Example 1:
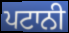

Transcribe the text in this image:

ਪਟਾਨੀ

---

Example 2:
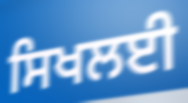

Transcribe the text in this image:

ਸਿਖਲਈ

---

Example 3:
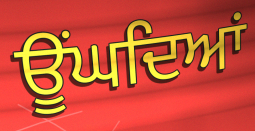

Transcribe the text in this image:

ਊਂਘਦਿਆਂ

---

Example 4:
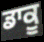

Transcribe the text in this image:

ਡਾਕੂ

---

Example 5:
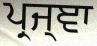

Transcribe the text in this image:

ਪ੍ਰਜ੍ਞਾ